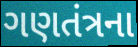
ગણતંત્રના